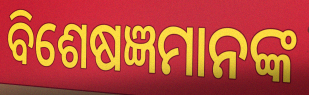
ବିଶେଷଜ୍ଞମାନଙ୍କ